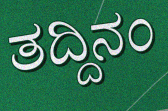
ತದ್ದಿನಂ